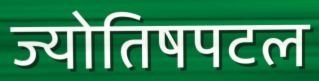
ज्योतिषपटल